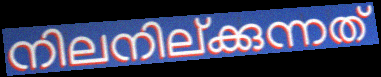
നിലനില്ക്കുന്നത്